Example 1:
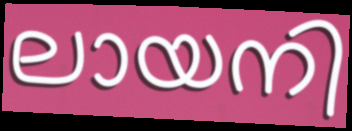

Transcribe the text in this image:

ലായനി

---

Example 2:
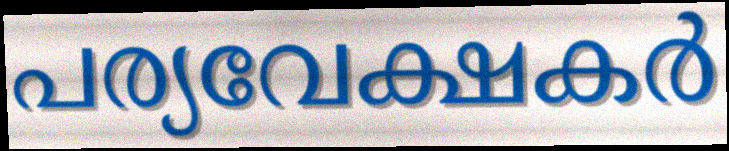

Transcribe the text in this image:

പര്യവേക്ഷകർ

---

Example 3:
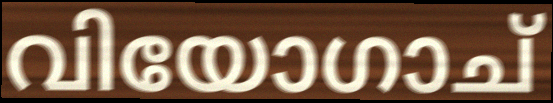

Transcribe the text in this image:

വിയോഗാച്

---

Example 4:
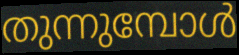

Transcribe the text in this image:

തുന്നുമ്പോൾ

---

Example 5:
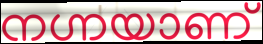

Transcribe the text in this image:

നഗ്നയാണ്